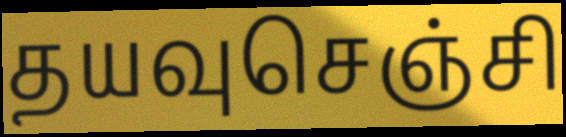
தயவுசெஞ்சி